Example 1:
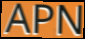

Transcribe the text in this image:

APN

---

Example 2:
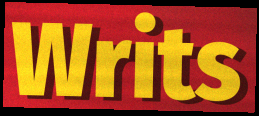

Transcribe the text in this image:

Writs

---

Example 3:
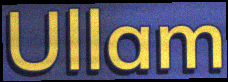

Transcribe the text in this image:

Ullam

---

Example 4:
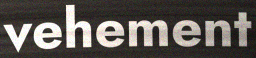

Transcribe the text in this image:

vehement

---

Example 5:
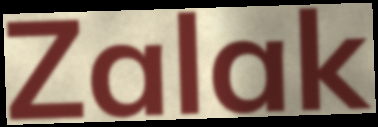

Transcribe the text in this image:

Zalak